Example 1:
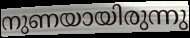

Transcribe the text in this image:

നുണയായിരുന്നു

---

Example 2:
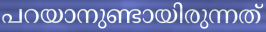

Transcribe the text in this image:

പറയാനുണ്ടായിരുന്നത്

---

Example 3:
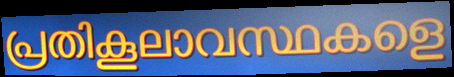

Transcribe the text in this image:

പ്രതികൂലാവസ്ഥകളെ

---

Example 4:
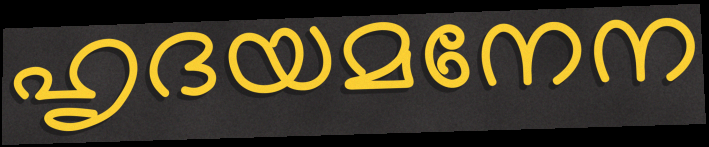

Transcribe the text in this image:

ഹൃദയമനേന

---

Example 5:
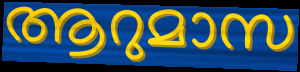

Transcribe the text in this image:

ആറുമാസ